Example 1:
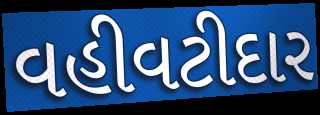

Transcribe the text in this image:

વહીવટીદાર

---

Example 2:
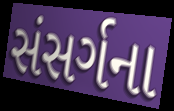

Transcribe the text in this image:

સંસર્ગના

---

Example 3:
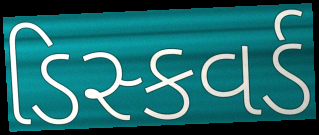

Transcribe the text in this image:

ડિસ્કવર્ડ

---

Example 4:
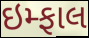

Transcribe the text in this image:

ઇમ્ફાલ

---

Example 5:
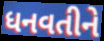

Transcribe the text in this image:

ધનવતીને